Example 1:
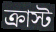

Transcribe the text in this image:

ক্রাস্ট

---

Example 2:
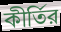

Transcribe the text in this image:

কীর্তির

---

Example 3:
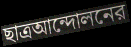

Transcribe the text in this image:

ছাত্রআন্দোলনের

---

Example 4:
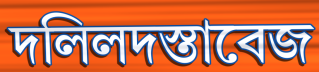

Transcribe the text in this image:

দলিলদস্তাবেজ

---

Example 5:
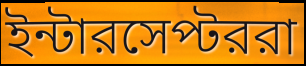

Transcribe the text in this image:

ইন্টারসেপ্টররা